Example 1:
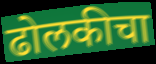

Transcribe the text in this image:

ढोलकीचा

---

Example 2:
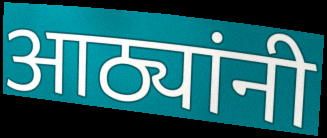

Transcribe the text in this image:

आठ्यांनी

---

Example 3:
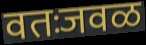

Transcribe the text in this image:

वतःजवळ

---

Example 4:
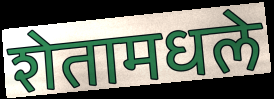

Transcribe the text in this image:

शेतामधले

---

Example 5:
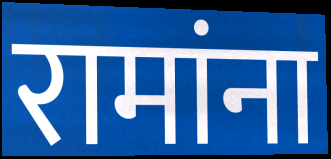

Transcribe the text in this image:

रामांना